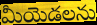
మీయెడలను